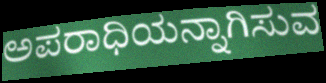
ಅಪರಾಧಿಯನ್ನಾಗಿಸುವ